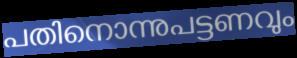
പതിനൊന്നുപട്ടണവും